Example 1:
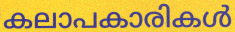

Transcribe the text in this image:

കലാപകാരികൾ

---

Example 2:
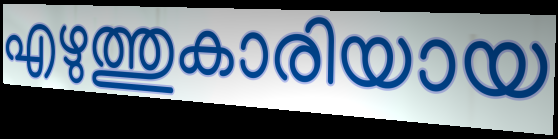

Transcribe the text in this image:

എഴുത്തുകാരിയായ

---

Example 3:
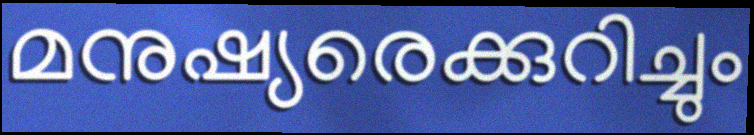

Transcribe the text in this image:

മനുഷ്യരെക്കുറിച്ചും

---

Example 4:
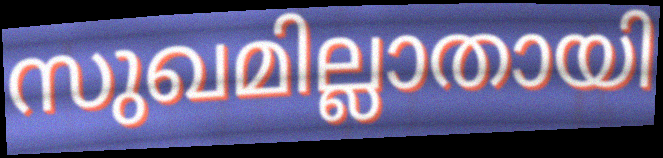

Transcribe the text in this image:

സുഖമില്ലാതായി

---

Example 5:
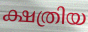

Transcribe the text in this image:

ക്ഷത്രിയ